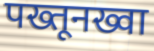
पख्तूनख्वा